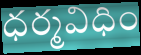
ధర్మవిధిం